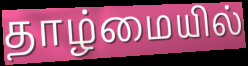
தாழ்மையில்